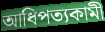
আধিপত্যকামী